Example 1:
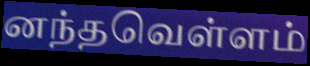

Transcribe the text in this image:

னந்தவெள்ளம்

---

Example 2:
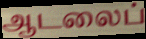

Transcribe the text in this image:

ஆடலைப்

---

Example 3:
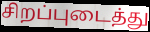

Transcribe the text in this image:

சிறப்புடைத்து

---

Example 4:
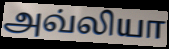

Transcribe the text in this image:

அவ்லியா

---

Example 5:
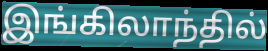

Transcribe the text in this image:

இங்கிலாந்தில்